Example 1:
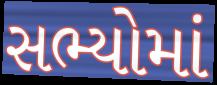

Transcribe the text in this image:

સભ્યોમાં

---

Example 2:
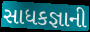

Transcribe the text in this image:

સાધકજ્ઞાની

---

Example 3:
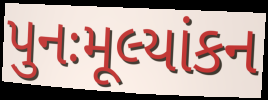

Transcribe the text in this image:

પુનઃમૂલ્યાંકન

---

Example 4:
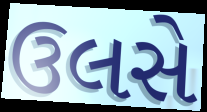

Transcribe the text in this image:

ઉલસે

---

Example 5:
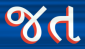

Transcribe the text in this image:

જત